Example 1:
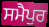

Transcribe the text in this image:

ਸਮੈਪੁਰ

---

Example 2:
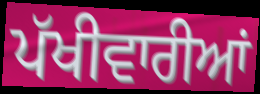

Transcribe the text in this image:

ਪੱਖੀਵਾਰੀਆਂ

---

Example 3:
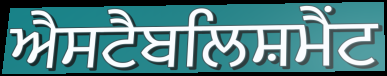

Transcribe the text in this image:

ਐਸਟੈਬਲਿਸ਼ਮੈਂਟ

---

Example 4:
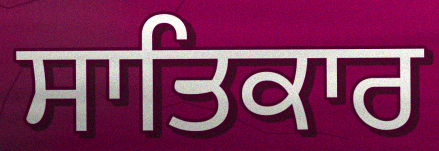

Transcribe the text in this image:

ਸਾਤਿਕਾਰ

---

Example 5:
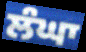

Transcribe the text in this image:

ਲੰਘਾ